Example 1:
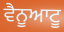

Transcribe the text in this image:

ਵੈਨੂਆਟੂ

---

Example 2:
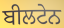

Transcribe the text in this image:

ਬੀਲਟੇਨ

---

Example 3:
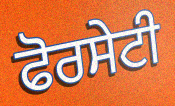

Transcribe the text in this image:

ਫੋਰਸੇਟੀ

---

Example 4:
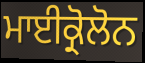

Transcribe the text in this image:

ਮਾਈਕ੍ਰੋਲੋਨ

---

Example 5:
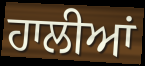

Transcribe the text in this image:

ਹਾਲੀਆਂ